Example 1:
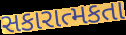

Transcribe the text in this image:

સકારાત્મકતા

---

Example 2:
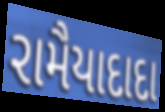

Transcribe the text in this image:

રામૈયાદાદા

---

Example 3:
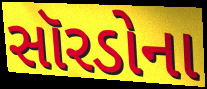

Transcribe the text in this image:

સૉરડોના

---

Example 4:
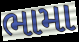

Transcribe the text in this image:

ભામા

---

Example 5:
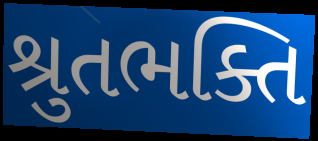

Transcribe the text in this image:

શ્રુતભક્તિ